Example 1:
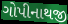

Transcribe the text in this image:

ગોપીનાથજી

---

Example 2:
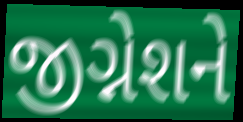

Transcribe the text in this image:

જીગ્નેશને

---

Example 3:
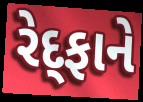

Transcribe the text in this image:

રેદ્ફાને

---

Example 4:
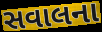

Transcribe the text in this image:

સવાલના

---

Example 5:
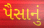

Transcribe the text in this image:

પૈસાનું